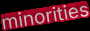
minorities